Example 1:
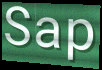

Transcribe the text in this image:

Sap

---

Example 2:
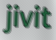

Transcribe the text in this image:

jivit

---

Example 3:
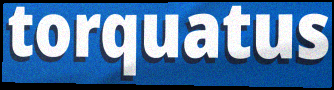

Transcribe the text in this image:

torquatus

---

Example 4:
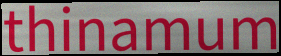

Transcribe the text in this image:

thinamum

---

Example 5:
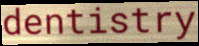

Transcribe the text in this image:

dentistry